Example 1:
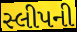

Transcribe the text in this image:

સ્લીપની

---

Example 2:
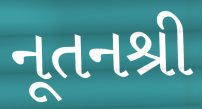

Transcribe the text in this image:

નૂતનશ્રી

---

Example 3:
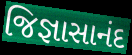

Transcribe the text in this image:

જિજ્ઞાસાનંદ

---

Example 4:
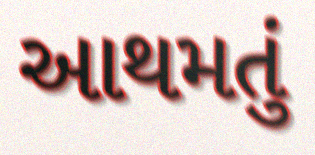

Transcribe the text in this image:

આથમતું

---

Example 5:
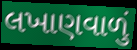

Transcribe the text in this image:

લખાણવાળું